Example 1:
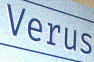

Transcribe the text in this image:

Verus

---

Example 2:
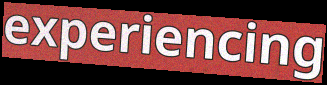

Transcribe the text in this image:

experiencing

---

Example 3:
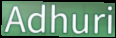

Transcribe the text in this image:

Adhuri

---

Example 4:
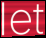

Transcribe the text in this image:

let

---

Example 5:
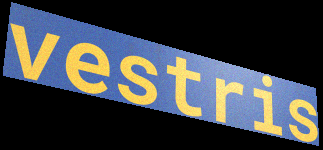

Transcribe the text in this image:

vestris